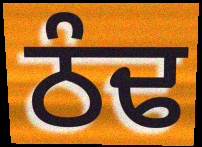
ਠੰਢ